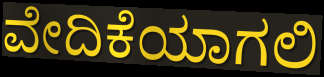
ವೇದಿಕೆಯಾಗಲಿ